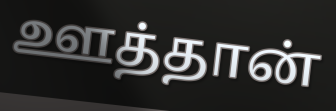
ஊத்தான்